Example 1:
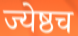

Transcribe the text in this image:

ज्येष्ठच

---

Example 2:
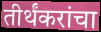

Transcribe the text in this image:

तीर्थंकरांचा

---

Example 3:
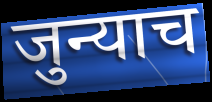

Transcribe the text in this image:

जुन्याच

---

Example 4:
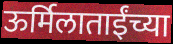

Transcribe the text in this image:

ऊर्मिलाताईंच्या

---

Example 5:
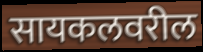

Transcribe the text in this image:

सायकलवरील